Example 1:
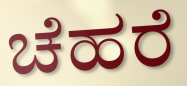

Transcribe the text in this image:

ಚೆಹರೆ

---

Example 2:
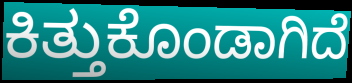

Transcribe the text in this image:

ಕಿತ್ತುಕೊಂಡಾಗಿದೆ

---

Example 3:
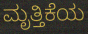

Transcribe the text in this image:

ಮೃತ್ತಿಕೆಯ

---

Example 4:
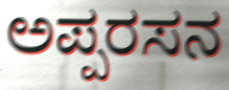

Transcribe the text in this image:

ಅಪ್ಪರಸನ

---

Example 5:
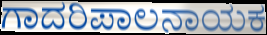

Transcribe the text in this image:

ಗಾದರಿಪಾಲನಾಯಕ